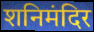
शनिमंदिर